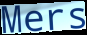
Mers